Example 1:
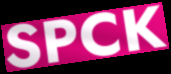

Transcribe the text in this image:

SPCK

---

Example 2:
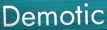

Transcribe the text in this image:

Demotic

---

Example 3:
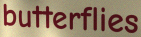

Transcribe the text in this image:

butterflies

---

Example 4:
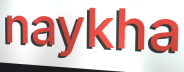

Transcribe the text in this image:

naykha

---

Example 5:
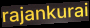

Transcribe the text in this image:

rajankurai